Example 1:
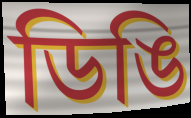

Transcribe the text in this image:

ডিঙি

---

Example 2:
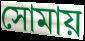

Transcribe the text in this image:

সোমায়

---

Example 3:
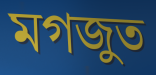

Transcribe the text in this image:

মগজুত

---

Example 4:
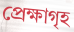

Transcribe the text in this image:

প্ৰেক্ষাগৃহ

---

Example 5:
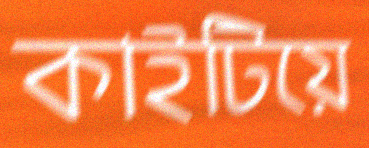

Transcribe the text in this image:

কাইটিয়ে